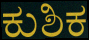
ಕುಶಿಕ